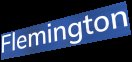
Flemington